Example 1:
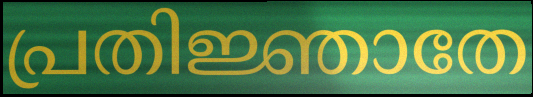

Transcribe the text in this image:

പ്രതിജ്ഞാതേ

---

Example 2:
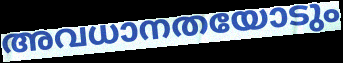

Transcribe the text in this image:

അവധാനതയോടും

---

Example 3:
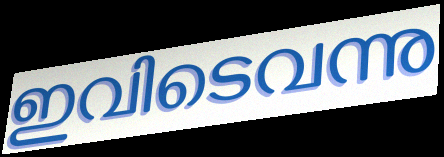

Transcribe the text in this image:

ഇവിടെവന്നു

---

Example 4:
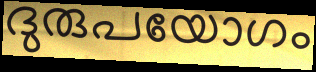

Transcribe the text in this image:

ദുരുപയോഗം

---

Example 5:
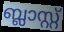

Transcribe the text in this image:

ബ്ലാസ്റ്റ്